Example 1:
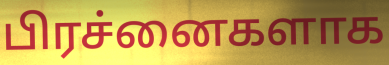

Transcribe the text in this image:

பிரச்னைகளாக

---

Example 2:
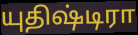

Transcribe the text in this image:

யுதிஷ்டிரா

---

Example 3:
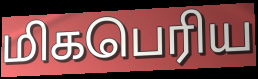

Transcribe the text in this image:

மிகபெரிய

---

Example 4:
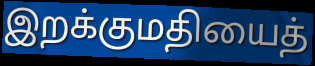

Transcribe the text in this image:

இறக்குமதியைத்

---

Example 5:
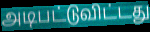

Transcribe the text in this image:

அடிபட்டுவிட்டது